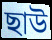
ছাউ